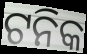
ଟନିକ